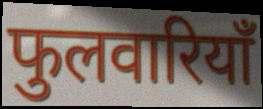
फुलवारियाँ